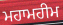
ਮਹਾਮਹੀਮ